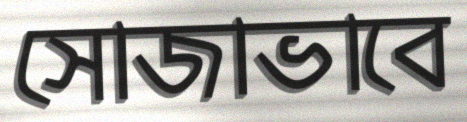
সোজাভাবে